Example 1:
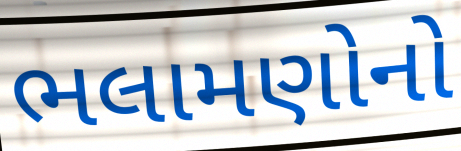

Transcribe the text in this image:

ભલામણોનો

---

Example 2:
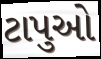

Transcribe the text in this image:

ટાપુઓ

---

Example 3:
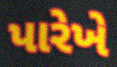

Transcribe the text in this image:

પારેખે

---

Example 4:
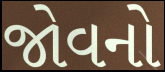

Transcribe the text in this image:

જોવનો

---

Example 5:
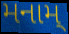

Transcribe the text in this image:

મનામ્